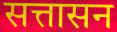
सत्तासन